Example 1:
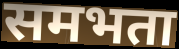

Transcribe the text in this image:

समभता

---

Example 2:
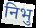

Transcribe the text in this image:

निभु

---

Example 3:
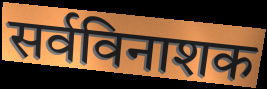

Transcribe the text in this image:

सर्वविनाशक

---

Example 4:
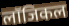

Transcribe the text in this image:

लॉजिकल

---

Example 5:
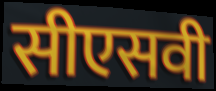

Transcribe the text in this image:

सीएसवी